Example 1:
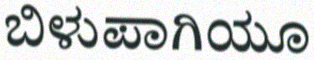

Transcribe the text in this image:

ಬಿಳುಪಾಗಿಯೂ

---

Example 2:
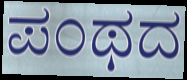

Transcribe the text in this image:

ಪಂಥದ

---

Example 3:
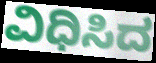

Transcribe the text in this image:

ವಿಧಿಸಿದ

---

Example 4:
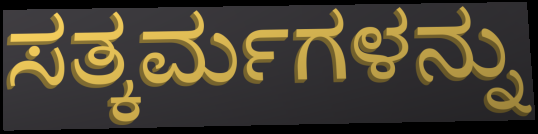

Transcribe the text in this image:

ಸತ್ಕರ್ಮಗಳನ್ನು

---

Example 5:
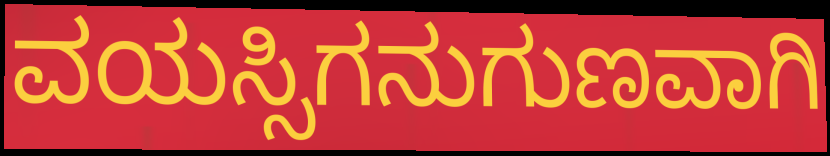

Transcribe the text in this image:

ವಯಸ್ಸಿಗನುಗುಣವಾಗಿ